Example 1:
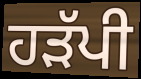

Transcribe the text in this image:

ਹੜੱਪੀ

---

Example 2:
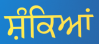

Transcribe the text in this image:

ਸ਼ੰਕਿਆਂ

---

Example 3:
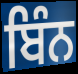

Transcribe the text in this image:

ਬਿੰਨ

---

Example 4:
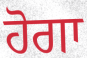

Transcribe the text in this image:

ਹੋਗਾ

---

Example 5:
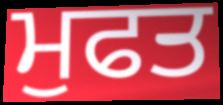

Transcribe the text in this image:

ਮੁਫਤ